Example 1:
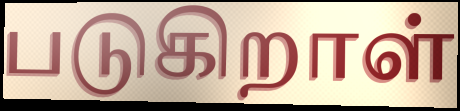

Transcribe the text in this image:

படுகிறாள்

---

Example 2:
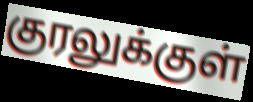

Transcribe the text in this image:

குரலுக்குள்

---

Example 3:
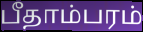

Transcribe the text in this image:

பீதாம்பரம்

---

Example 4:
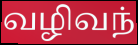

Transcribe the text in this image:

வழிவந்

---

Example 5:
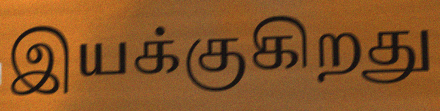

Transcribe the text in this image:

இயக்குகிறது